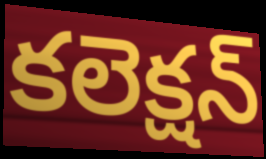
కలెక్షన్